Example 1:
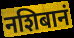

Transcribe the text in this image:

नशिबानं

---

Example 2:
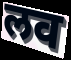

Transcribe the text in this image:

लव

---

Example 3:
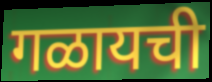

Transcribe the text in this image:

गळायची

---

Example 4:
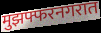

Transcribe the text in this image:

मुझफ्फरनगरात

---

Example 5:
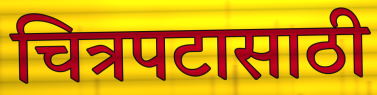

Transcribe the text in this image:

चित्रपटासाठी